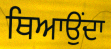
ਥਿਆਉਂਦਾ